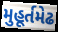
મુહૂર્તમેઢ